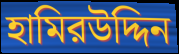
হামিরউদ্দিন